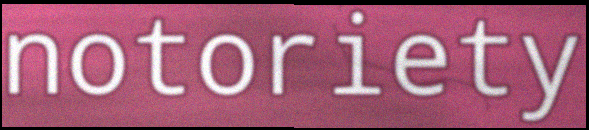
notoriety